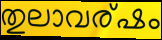
തുലാവര്ഷം